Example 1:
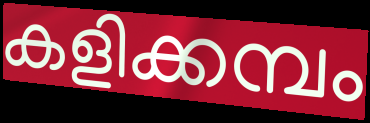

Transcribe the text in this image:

കളിക്കമ്പം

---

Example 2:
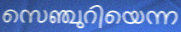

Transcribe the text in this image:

സെഞ്ചുറിയെന്ന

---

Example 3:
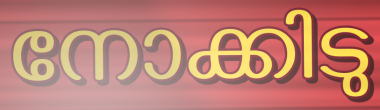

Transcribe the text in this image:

നോക്കിടു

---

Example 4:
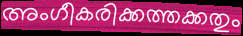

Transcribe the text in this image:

അംഗീകരിക്കത്തക്കതും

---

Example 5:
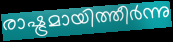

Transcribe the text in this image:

രാഷ്ട്രമായിത്തീർന്നു